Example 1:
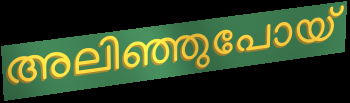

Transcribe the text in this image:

അലിഞ്ഞുപോയ്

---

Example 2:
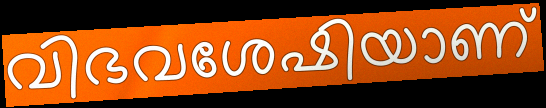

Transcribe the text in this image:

വിഭവശേഷിയാണ്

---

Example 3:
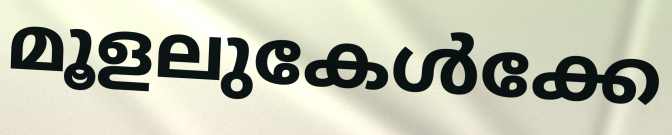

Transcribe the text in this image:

മൂളലുകേൾക്കേ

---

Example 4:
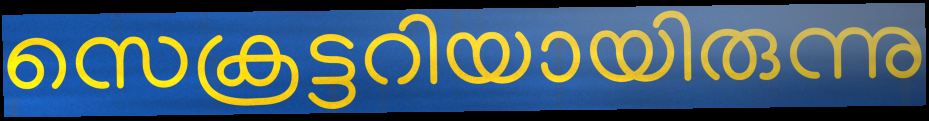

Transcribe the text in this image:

സെക്രട്ടറിയായിരുന്നു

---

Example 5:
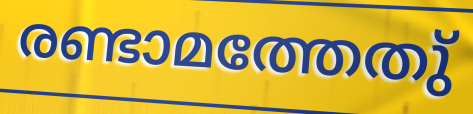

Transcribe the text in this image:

രണ്ടാമത്തേതു്